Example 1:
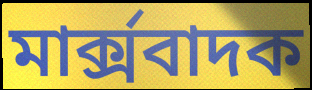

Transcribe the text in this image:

মাৰ্ক্সবাদক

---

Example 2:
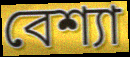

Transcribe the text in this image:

বেশ্যা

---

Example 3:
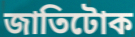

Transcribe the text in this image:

জাতিটোক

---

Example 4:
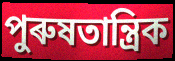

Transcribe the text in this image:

পুৰুষতান্ত্ৰিক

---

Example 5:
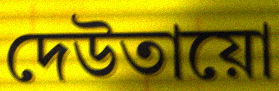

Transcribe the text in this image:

দেউতায়ো